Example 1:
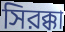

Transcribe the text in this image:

সিরক্কা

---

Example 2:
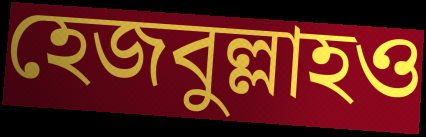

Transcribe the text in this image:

হেজবুল্লাহও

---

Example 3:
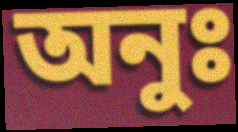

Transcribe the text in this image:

অনুঃ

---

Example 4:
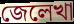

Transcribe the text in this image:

জেলেখা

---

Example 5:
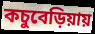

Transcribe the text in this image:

কচুবেড়িয়ায়